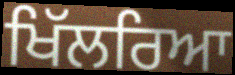
ਖਿੱਲਰਿਆ